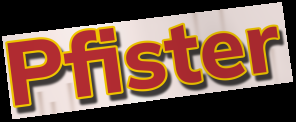
Pfister